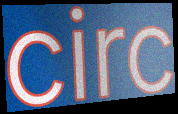
circ